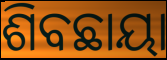
ଶିବଛାୟା